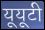
यूयूटी